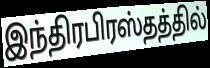
இந்திரபிரஸ்தத்தில்